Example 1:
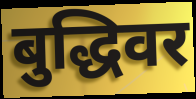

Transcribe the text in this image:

बुद्धिवर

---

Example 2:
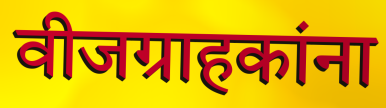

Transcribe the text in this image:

वीजग्राहकांना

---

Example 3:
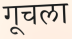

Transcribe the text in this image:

गूचला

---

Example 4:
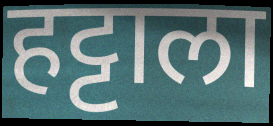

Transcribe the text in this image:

हट्टाला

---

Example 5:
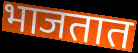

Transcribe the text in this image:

भाजतात